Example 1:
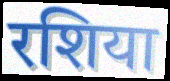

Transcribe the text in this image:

रशिया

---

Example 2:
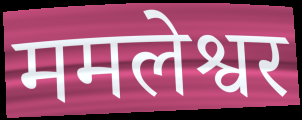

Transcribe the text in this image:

ममलेश्वर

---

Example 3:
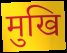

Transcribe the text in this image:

मुखि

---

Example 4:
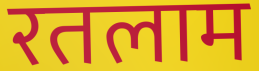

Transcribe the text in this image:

रतलाम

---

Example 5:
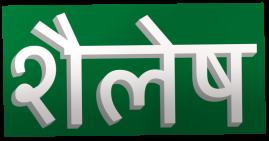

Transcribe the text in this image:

शैलेष